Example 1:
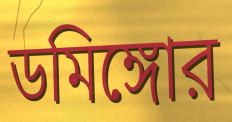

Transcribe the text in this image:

ডমিঙ্গোর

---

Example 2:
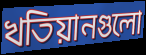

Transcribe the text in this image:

খতিয়ানগুলো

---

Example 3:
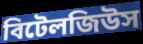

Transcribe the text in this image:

বিটেলজিউস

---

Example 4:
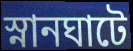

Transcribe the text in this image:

স্নানঘাটে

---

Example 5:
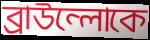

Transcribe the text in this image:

ব্রাউন্লোকে